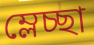
ম্লেচ্ছা